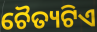
ଚୈତ୍ୟଟିଏ